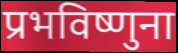
प्रभविष्णुना